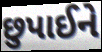
છુપાઈને